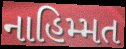
નાહિમ્મત